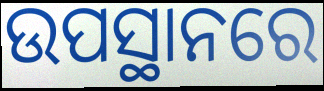
ଉପସ୍ଥାନରେ